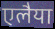
एलैया